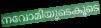
നവോമിയുടെകൂടെ